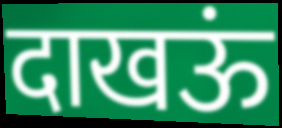
दाखऊं